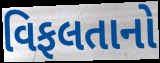
વિફલતાનો